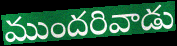
ముందరివాడు